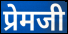
प्रेमजी